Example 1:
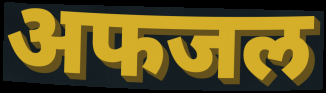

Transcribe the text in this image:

अफजल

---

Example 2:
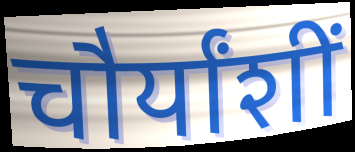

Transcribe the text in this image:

चौर्यांशीं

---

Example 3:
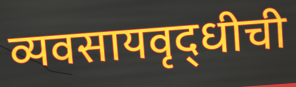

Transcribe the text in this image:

व्यवसायवृद्धीची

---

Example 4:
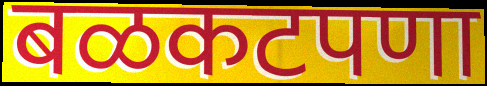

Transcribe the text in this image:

बळकटपणा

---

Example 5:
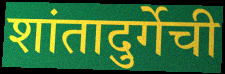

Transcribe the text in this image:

शांतादुर्गेची